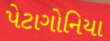
પેટાગોનિયા